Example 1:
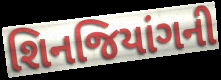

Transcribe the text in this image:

શિનજિયાંગની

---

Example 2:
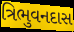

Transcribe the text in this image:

ત્રિભુવનદાસ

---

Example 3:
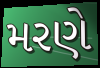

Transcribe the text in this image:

મરણે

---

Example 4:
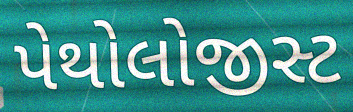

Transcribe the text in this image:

પેથોલોજીસ્ટ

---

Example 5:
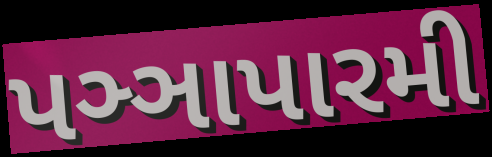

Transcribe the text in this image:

પઞ્ઞાપારમી